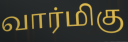
வார்மிகு